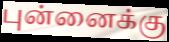
புன்னைக்கு